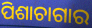
ପିଶାଚାଗାର